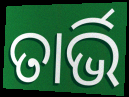
ତାର୍ଭି